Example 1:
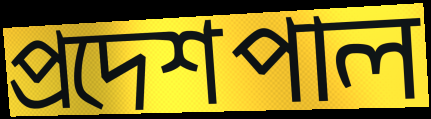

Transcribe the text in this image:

প্রদেশপাল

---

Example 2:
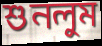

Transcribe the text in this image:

শুনলুম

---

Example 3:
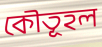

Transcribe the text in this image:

কৌতূহল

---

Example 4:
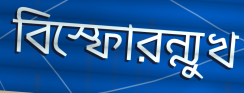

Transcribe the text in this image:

বিস্ফোরন্মুখ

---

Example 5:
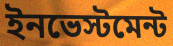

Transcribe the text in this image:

ইনভেস্টমেন্ট